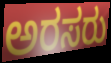
ಅರಸರು